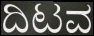
ದಿಟವ